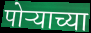
पोऱ्याच्या